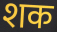
शक